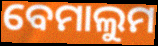
ବେମାଲୁମ